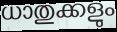
ധാതുക്കളും